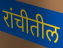
रांचीतील